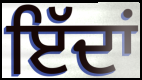
ਇੱਦਾਂ